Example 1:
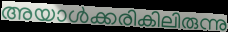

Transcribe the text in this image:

അയാൾക്കരികിലിരുന്നു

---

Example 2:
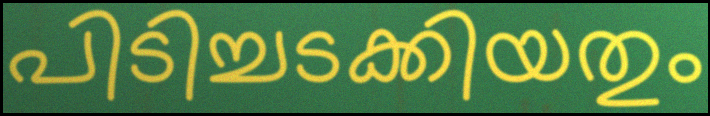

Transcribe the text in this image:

പിടിച്ചടക്കിയതും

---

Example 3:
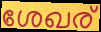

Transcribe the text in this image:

ശേഖര്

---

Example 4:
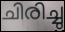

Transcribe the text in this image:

ചിരിച്ചു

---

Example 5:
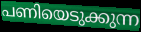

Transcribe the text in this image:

പണിയെടുക്കുന്ന